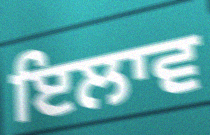
ਇਲਾਵ